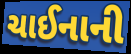
ચાઈનાની